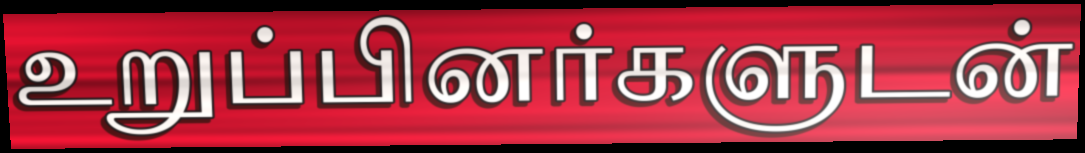
உறுப்பினர்களுடன்